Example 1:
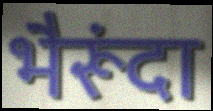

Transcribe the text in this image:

भैरूंदा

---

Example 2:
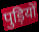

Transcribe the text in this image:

पुड़ियों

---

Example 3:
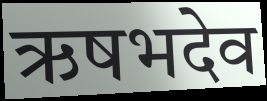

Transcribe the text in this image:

ऋषभदेव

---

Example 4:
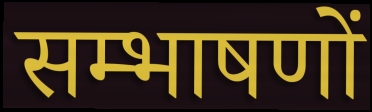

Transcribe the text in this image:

सम्भाषणों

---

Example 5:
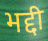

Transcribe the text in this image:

भद्दी